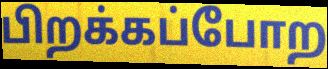
பிறக்கப்போற